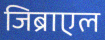
जिब्राएल